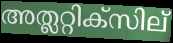
അത്ലറ്റിക്സില്